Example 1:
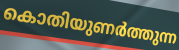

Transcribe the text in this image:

കൊതിയുണർത്തുന്ന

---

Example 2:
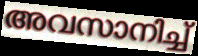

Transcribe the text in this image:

അവസാനിച്ച്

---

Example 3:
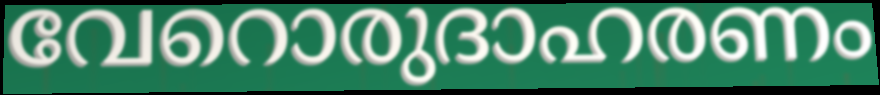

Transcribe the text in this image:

വേറൊരുദാഹരണം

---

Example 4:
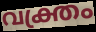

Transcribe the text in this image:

വക്ത്രം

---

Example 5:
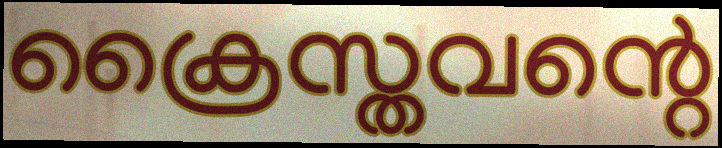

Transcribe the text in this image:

ക്രൈസ്തവന്റെ